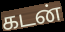
கடன்